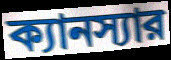
ক্যানস্যার